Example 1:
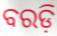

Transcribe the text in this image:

ବରଡ଼ି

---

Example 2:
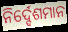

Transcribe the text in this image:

ନିର୍ଦ୍ଦେଶମାନ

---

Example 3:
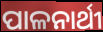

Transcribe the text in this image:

ପାଳନାର୍ଥୀ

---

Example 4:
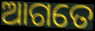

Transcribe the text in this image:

ଆଗତେ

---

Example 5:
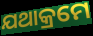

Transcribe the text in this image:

ଯଥାକ୍ରମେ